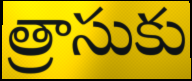
త్రాసుకు